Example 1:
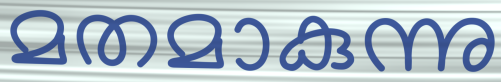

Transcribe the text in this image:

മതമാകുന്നു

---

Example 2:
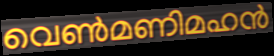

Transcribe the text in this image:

വെൺമണിമഹൻ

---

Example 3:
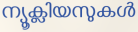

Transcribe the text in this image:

ന്യൂക്ലിയസുകൾ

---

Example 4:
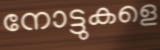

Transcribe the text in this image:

നോട്ടുകളെ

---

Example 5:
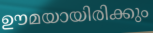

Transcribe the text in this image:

ഊമയായിരിക്കും